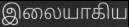
இலையாகிய